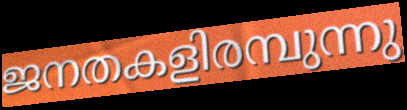
ജനതകളിരമ്പുന്നു